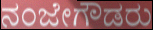
ನಂಜೇಗೌಡರು